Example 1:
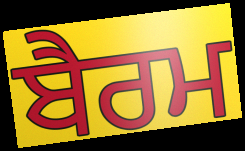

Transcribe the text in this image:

ਬੈਰਮ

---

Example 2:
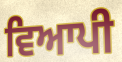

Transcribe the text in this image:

ਵਿਆਪੀ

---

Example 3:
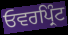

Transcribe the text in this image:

ਓਵਰਪ੍ਰਿੰਟ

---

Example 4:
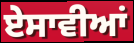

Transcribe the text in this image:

ਏਸਾਵੀਆਂ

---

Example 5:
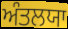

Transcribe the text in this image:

ਅੰਤਲਯਾ